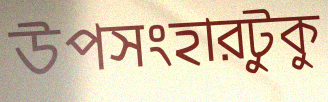
উপসংহারটুকু